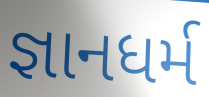
જ્ઞાનધર્મ